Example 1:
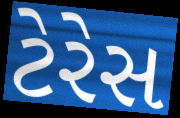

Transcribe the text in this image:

ટેરેસ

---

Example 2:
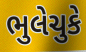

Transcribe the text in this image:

ભુલેચુકે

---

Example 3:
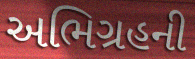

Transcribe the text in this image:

અભિગ્રહની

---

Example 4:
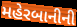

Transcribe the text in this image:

મહેરબાનીની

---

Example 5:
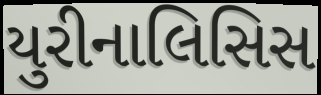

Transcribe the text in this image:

યુરીનાલિસિસ